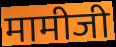
मामीजी